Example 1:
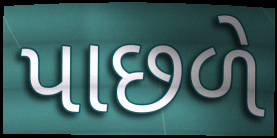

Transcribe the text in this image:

પાછળે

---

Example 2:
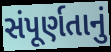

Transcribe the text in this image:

સંપૂર્ણતાનું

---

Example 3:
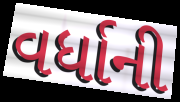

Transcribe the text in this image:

વર્ધાની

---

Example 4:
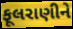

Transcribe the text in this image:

ફૂલરાણીને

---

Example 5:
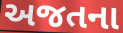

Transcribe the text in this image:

અજતના